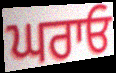
ਘਰਾਓ